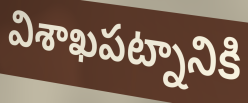
విశాఖపట్నానికి